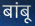
बांबू